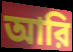
আরি